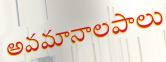
అవమానాలపాలు